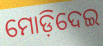
ମୋଡ଼ିଦେଇ